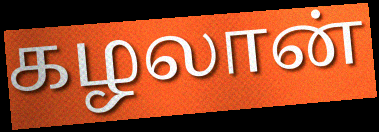
கழலான்